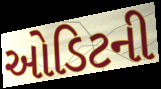
ઓડિટની